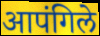
आपंगिले